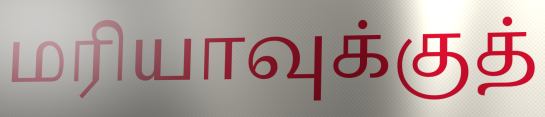
மரியாவுக்குத்